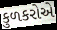
કુળકરોએ